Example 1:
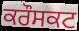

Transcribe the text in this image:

ਕਰੌਸਕਟ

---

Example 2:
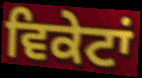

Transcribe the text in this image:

ਵਿਕੇਟਾਂ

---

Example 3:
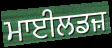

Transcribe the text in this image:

ਮਾਈਲਡਜ਼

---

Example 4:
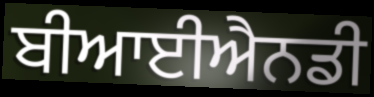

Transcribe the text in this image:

ਬੀਆਈਐਨਡੀ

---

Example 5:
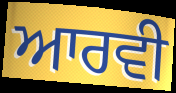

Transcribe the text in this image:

ਆਰਵੀ